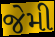
જેમી